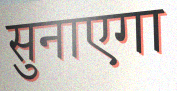
सुनाएगा